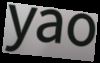
yao